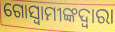
ଗୋସ୍ୱାମୀଙ୍କଦ୍ୱାରା